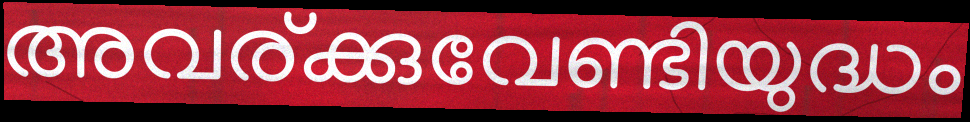
അവര്ക്കുവേണ്ടിയുദ്ധം